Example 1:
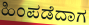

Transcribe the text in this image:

ಹಿಂಪಡೆದಾಗ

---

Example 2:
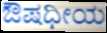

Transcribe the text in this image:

ಔಷಧೀಯ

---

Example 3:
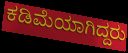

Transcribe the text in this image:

ಕಡಿಮೆಯಾಗಿದ್ದರು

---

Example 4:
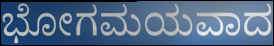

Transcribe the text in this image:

ಭೋಗಮಯವಾದ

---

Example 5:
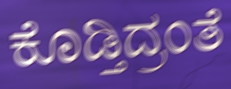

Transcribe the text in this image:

ಕೊಡ್ತಿದ್ರಂತೆ